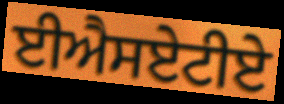
ਈਐਸਏਟੀਏ